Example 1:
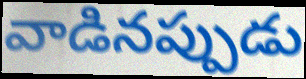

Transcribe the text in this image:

వాడినప్పుడు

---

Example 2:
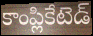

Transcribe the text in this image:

కాంప్లికేటెడ్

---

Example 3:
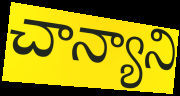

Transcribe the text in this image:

చాన్యాని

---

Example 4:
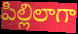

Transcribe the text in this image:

పిల్లిలాగా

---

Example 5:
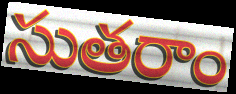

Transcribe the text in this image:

సుతరాం